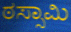
ಠಸ್ಸಾಮಿ